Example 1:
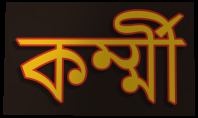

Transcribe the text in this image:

কর্ম্মী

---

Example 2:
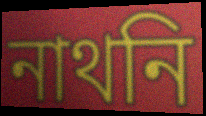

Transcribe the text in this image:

নাথনি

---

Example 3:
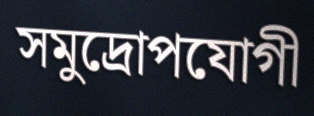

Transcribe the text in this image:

সমুদ্রোপযোগী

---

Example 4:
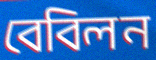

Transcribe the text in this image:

বেবিলন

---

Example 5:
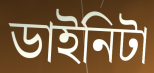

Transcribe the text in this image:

ডাইনিটা